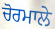
ਚੋਰਮਾਲੇ